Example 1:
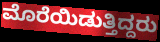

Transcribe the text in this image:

ಮೊರೆಯಿಡುತ್ತಿದ್ದರು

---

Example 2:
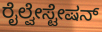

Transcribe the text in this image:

ರೈಲ್ವೇಸ್ಟೇಷನ್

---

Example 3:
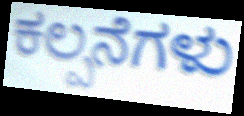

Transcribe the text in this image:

ಕಲ್ಪನೆಗಳು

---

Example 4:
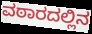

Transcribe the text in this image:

ವಠಾರದಲ್ಲಿನ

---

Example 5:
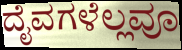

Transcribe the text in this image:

ದೈವಗಳೆಲ್ಲವೂ